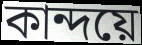
কান্দয়ে